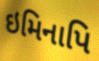
ઇમિનાપિ